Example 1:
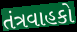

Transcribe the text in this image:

તંત્રવાહકો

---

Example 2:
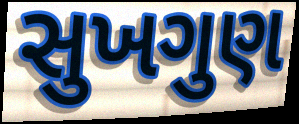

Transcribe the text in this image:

સુખગુણ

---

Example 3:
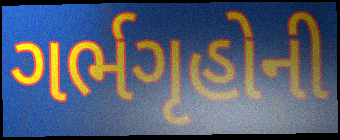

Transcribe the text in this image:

ગર્ભગૃહોની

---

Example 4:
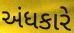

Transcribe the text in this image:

અંધકારે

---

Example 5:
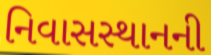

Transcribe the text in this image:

નિવાસસ્થાનની